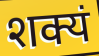
शक्यं